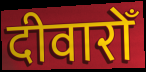
दीवारोँ